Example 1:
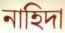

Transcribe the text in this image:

নাহিদা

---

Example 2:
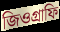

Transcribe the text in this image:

জিওগ্রাফি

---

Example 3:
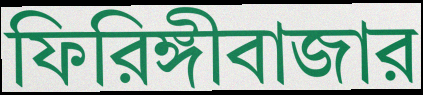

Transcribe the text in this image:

ফিরিঙ্গীবাজার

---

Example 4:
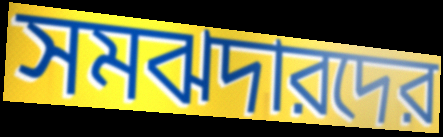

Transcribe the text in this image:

সমঝদারদের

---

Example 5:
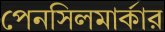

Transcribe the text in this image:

পেনসিলমার্কার